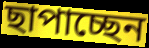
ছাপাচ্ছেন